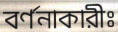
বর্ণনাকারীঃ